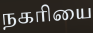
நகரியை